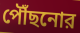
পৌঁছনোর